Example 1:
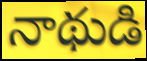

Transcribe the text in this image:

నాథుడి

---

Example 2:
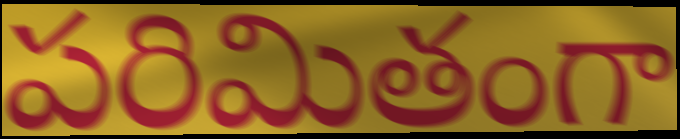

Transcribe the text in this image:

పరిమితంగా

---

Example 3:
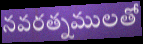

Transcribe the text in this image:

నవరత్నములతో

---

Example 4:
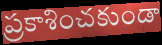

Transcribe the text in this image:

ప్రకాశించకుండా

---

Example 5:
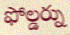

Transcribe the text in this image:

ఫోల్డర్ను